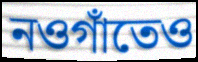
নওগাঁতেও